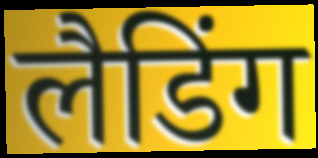
लैडिंग